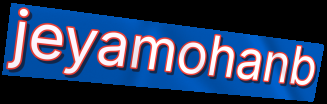
jeyamohanb